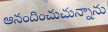
ఆనందించుచున్నాను